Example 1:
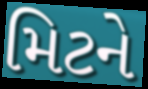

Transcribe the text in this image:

મિટને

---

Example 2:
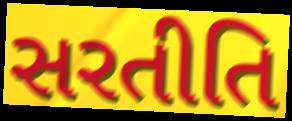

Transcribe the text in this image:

સરતીતિ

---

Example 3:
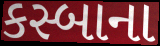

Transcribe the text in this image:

કસ્બાના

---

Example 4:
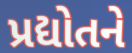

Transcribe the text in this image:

પ્રદ્યોતને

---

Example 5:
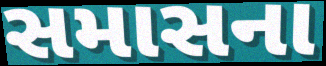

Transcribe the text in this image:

સમાસના